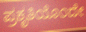
ಪ್ರಕೃತಿಯೊಂದೇ